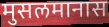
मुसलमानास